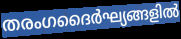
തരംഗദൈർഘ്യങ്ങളിൽ